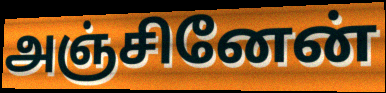
அஞ்சினேன்